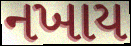
નખાય